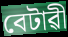
বেটাৱী